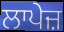
ਲਾਪੇਜ਼